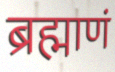
ब्रह्माणं